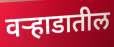
वर्‍हाडातील